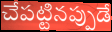
చేపట్టినప్పుడే